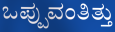
ಒಪ್ಪುವಂತಿತ್ತು